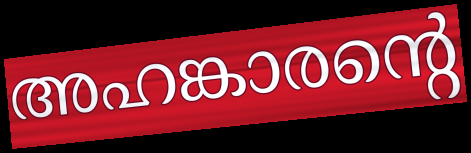
അഹങ്കാരന്റെ